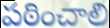
పఠించాలి